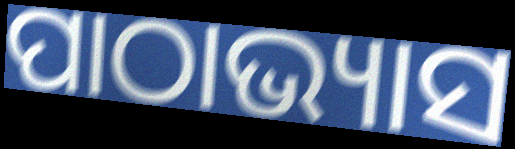
ପାଠାଭ୍ୟାସ